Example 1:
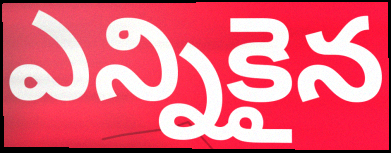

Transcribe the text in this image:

ఎన్నికైన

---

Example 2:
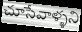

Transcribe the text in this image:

చూసేవాళ్ళని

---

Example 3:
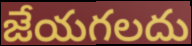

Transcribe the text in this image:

జేయగలదు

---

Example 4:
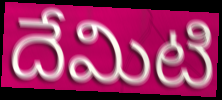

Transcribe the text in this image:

దేమిటి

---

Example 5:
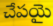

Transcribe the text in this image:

చేపయై